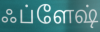
ஃப்ளேஷ்